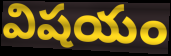
విషయం